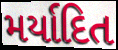
મર્યાદિત